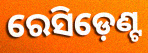
ରେସିଡ଼େଣ୍ଟ